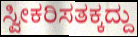
ಸ್ವೀಕರಿಸತಕ್ಕದ್ದು